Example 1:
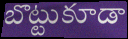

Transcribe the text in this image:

బొట్టుకూడా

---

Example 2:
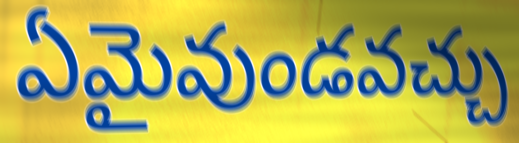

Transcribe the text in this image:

ఏమైవుండవచ్చు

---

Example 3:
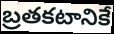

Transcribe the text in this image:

బ్రతకటానికే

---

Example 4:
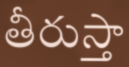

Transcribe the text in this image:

తీరుస్తా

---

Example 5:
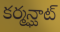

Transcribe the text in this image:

కర్మన్ఘాట్